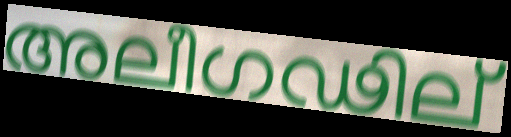
അലീഗഢില്